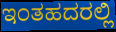
ಇಂತಹದರಲ್ಲಿ